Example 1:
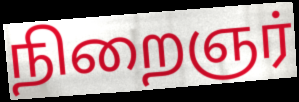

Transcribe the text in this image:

நிறைஞர்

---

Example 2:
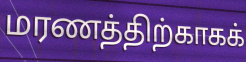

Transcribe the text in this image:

மரணத்திற்காகக்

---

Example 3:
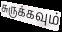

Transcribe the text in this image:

சுருக்கவும்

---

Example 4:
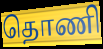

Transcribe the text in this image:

தொணி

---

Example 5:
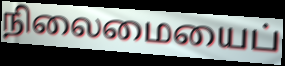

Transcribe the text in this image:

நிலைமையைப்